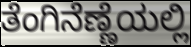
ತೆಂಗಿನೆಣ್ಣೆಯಲ್ಲಿ